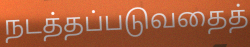
நடத்தப்படுவதைத்